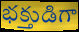
భక్తుడిగా